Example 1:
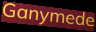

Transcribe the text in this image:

Ganymede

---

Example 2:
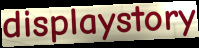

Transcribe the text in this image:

displaystory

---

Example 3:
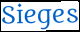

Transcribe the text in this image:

Sieges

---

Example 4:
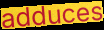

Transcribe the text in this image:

adduces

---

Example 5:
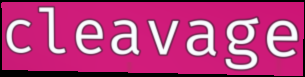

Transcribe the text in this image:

cleavage